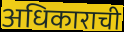
अधिकाराची